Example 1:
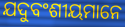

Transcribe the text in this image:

ଯଦୁବଂଶୀୟମାନେ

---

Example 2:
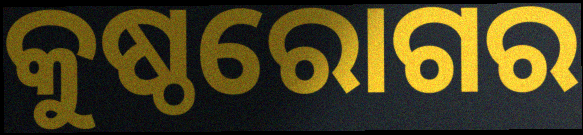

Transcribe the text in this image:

କୁଷ୍ଠରୋଗର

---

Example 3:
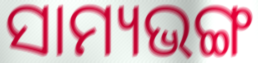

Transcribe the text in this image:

ସାମ୍ଯଭଙ୍ଗ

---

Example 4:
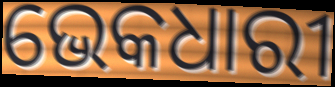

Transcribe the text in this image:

ଭେକଧାରୀ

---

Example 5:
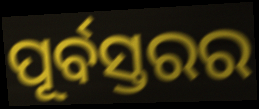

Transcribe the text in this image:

ପୂର୍ବସ୍ତରର